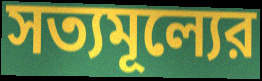
সত্যমূল্যের